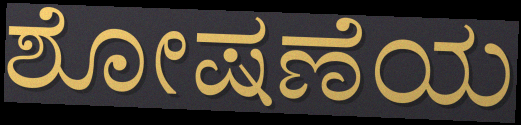
ಶೋಷಣೆಯ